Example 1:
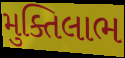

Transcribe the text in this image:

મુક્તિલાભ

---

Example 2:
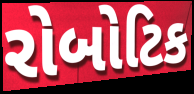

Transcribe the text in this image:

રોબોટિક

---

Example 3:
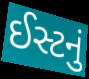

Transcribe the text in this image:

ઈસ્ટનું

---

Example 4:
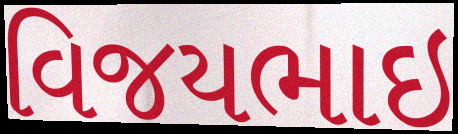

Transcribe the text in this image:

વિજયભાઇ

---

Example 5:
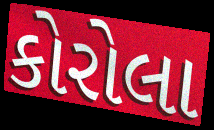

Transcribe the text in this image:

કોરોલા